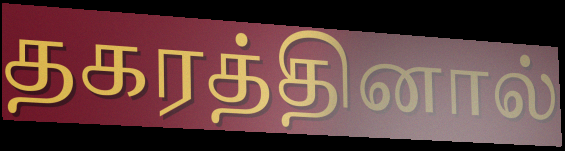
தகரத்தினால்